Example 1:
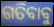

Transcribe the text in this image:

ଗତିବାବୁ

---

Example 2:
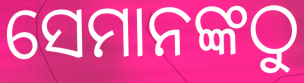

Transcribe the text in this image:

ସେମାନଙ୍କଠୁ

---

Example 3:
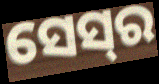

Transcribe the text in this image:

ସେସ୍‌ର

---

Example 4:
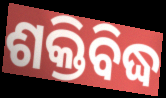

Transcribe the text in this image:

ଶକ୍ତିବିଦ୍ଧ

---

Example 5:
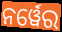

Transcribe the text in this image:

ନର୍ୱେର